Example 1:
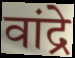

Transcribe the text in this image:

वांद्रे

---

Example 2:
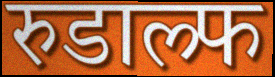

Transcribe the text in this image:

रुडाल्फ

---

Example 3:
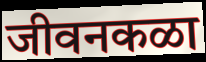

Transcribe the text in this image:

जीवनकळा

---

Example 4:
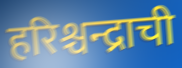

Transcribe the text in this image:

हरिश्चन्द्राची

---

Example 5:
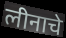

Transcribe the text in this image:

लीनाचे